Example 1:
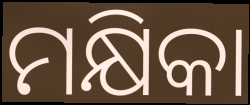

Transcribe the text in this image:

ମକ୍ଷିକା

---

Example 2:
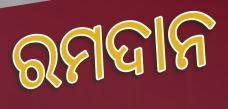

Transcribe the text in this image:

ରମଦାନ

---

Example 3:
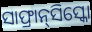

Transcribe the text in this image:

ସାଫ୍ରାନ୍‌ସିସ୍କୋ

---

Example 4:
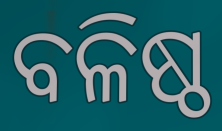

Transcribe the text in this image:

ବଳିଷ୍ଠ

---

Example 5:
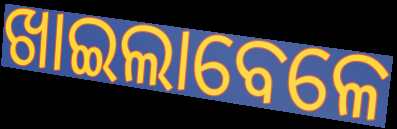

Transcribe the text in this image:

ଖାଇଲାବେଳେ